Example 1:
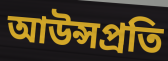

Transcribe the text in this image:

আউন্সপ্রতি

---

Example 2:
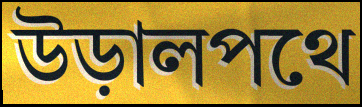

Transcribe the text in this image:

উড়ালপথে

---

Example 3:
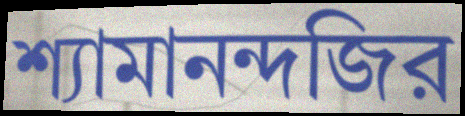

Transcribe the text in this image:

শ্যামানন্দজির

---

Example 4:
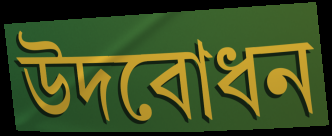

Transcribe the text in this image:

উদবোধন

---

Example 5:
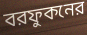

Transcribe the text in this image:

বরফুকনের